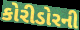
કોરીડોરની